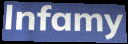
Infamy